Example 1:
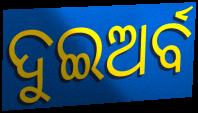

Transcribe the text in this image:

ଦୁଇଅର୍ବ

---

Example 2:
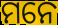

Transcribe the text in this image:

ମନେ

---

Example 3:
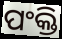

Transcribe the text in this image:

ପଂକ୍ତି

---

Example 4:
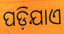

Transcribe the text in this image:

ପଡ଼ିଯାଏ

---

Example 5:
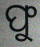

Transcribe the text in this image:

ଫୁ